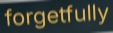
forgetfully